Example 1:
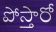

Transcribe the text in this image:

పోస్తారో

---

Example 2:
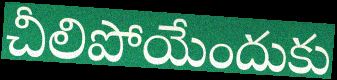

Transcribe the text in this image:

చీలిపోయేందుకు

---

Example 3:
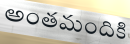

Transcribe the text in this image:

అంతమందికి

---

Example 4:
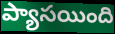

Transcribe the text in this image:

ప్యాసయింది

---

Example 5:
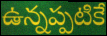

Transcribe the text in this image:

ఉన్నప్పటికే